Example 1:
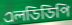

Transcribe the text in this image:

এলডিডিপি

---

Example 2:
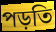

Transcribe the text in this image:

পড়তি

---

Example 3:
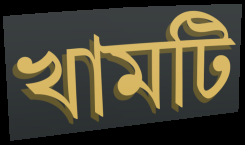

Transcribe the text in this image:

খামটি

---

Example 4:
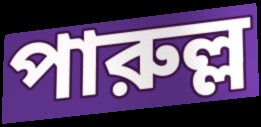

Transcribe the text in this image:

পারুল্ল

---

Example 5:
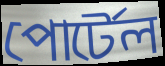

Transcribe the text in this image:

পোর্টেল